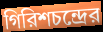
গিরিশচন্দ্রের